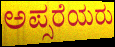
ಅಪ್ಸರೆಯರು